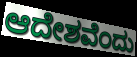
ಆದೇಶವೆಂದು